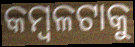
କମ୍ବଳଟାକୁ